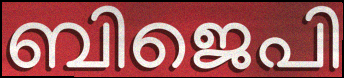
ബിജെപി